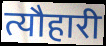
त्यौहारी